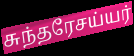
சுந்தரேசய்யர்